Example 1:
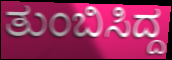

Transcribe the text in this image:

ತುಂಬಿಸಿದ್ದ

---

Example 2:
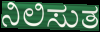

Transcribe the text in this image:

ನಿಲಿಸುತ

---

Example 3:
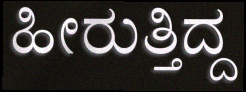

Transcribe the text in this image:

ಹೀರುತ್ತಿದ್ದ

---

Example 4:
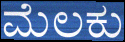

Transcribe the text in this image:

ಮೆಲಕು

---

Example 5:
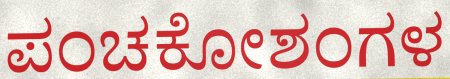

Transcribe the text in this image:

ಪಂಚಕೋಶಂಗಳ